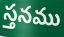
స్తనము